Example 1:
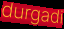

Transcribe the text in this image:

durgadi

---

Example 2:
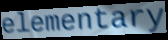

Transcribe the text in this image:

elementary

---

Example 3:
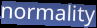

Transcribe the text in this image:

normality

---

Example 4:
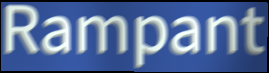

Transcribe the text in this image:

Rampant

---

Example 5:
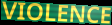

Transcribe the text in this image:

VIOLENCE